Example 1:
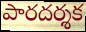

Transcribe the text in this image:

పారదర్శక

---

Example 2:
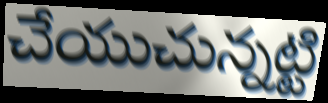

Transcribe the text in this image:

చేయుచున్నట్టి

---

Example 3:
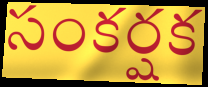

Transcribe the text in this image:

సంకర్షక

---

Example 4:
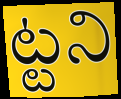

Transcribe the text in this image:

ట్టని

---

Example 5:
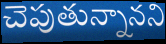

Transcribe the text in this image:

చెపుతున్నానని